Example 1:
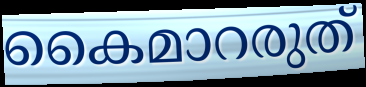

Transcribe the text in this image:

കൈമാറരുത്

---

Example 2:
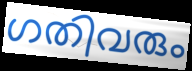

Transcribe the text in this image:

ഗതിവരും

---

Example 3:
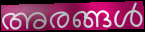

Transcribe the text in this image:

അരങ്ങൾ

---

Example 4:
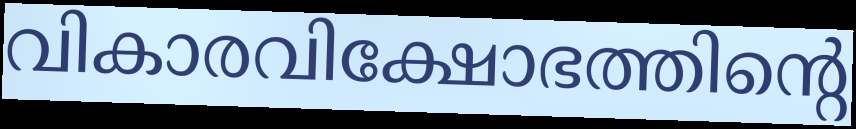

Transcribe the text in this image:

വികാരവിക്ഷോഭത്തിന്റെ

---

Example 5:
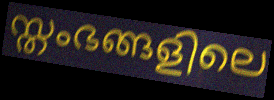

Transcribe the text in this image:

സ്തംഭങ്ങളിലെ